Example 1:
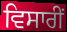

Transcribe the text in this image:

ਵਿਸਾਰੀਂ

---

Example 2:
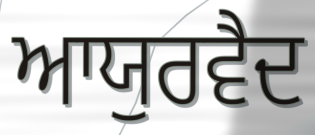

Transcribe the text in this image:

ਆਯੁਰਵੈਦ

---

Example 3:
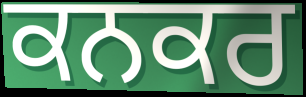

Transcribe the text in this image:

ਕਨਕਰ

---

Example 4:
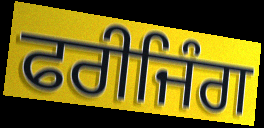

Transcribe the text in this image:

ਫਰੀਜਿੰਗ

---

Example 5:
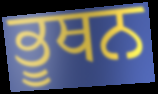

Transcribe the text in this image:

ਭੂਥਨ